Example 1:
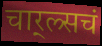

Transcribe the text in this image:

चार्ल्सचं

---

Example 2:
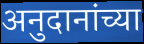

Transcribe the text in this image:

अनुदानांच्या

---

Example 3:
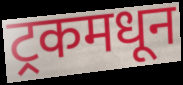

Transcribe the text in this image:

ट्रकमधून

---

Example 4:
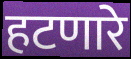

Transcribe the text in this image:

हटणारे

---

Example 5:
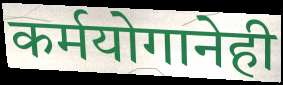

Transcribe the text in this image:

कर्मयोगानेही